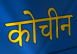
कोचीन